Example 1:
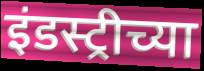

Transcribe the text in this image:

इंडस्ट्रीच्या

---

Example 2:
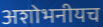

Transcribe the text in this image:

अशोभनीयच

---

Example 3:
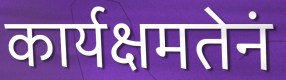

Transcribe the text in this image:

कार्यक्षमतेनं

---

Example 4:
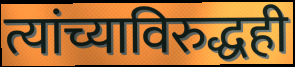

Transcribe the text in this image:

त्यांच्याविरुद्धही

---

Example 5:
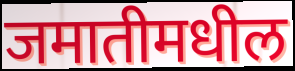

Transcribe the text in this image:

जमातीमधील